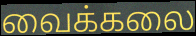
வைக்கலை